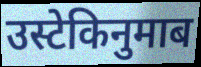
उस्टेकिनुमाब